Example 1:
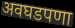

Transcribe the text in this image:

अवघडपणा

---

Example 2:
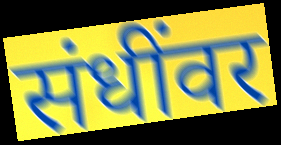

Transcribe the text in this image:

संधींवर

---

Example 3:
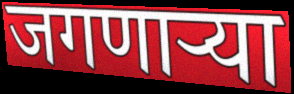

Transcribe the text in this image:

जगणाऱ्या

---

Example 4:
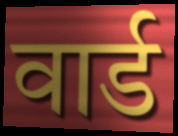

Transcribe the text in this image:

वार्ड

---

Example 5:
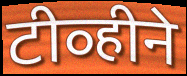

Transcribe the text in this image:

टीव्हीने